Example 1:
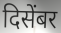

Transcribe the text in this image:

दिसेंबर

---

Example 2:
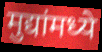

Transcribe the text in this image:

मुद्यांमध्ये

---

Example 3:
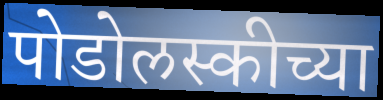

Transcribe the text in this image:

पोडोलस्कीच्या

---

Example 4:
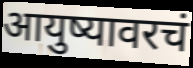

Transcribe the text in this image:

आयुष्यावरचं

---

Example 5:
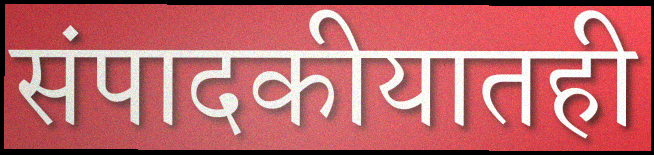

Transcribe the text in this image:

संपादकीयातही